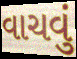
વાચવું